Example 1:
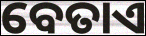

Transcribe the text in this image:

ବେତାଏ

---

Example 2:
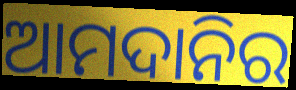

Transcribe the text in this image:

ଆମଦାନିର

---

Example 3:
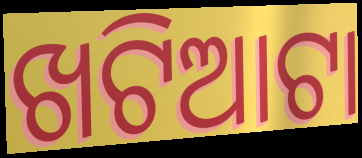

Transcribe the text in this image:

ଖଟିଆଟା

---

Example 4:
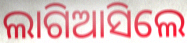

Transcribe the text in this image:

ଲାଗିଆସିଲେ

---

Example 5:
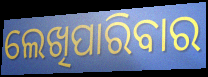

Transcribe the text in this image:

ଲେଖିପାରିବାର